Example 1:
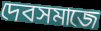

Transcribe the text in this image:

দেবসমাজে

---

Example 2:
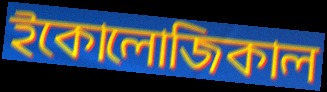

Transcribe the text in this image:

ইকোলোজিকাল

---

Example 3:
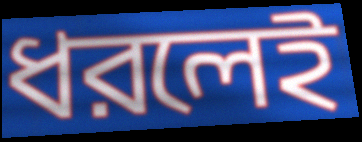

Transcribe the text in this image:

ধরলেই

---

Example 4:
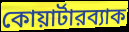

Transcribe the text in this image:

কোয়ার্টারব্যাক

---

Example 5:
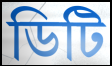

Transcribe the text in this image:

ডিটি